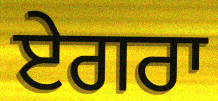
ਏਗਰਾ